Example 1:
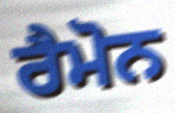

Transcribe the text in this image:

ਰੈਮੋਨ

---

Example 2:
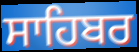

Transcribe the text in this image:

ਸਾਹਿਬਰ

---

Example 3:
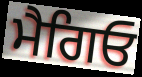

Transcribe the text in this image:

ਮੈਗਿਓ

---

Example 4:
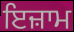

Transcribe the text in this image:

ਇਜ਼ਾਮ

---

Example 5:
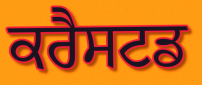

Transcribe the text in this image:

ਕਰੈਸਟਡ